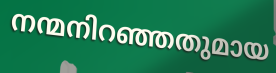
നന്മനിറഞ്ഞതുമായ